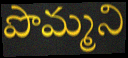
పొమ్మని